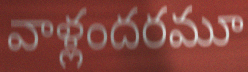
వాళ్లందరమూ